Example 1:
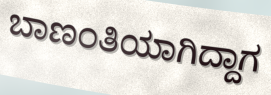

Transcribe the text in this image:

ಬಾಣಂತಿಯಾಗಿದ್ದಾಗ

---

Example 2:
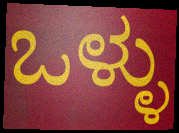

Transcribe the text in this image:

ಒಳ್ಳು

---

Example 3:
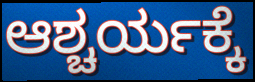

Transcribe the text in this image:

ಆಶ್ಚರ್ಯಕ್ಕೆ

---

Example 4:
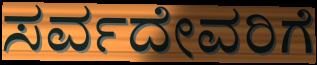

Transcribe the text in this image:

ಸರ್ವದೇವರಿಗೆ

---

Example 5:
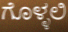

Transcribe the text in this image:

ಗೊಳ್ಳಲಿ